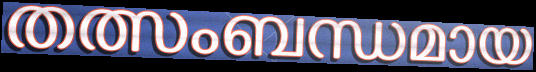
തത്സംബന്ധമായ